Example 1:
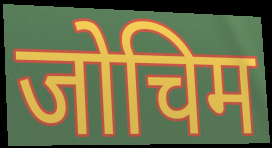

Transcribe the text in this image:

जोचिम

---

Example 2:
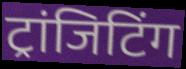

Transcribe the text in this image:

ट्रांजिटिंग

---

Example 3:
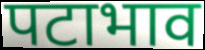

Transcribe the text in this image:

पटाभाव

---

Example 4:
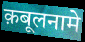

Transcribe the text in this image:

क़बूलनामे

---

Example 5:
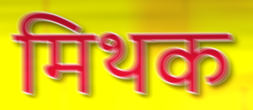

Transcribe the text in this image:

मिथक